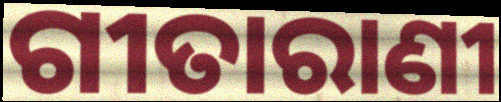
ଗୀତାରାଣୀ